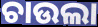
ଚାଉଲା